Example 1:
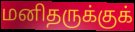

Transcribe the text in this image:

மனிதருக்குக்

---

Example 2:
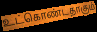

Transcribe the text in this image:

உட்கொண்டதாகும்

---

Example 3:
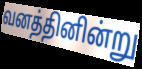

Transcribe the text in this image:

வனத்தினின்று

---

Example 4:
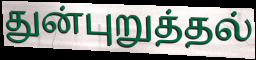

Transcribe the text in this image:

துன்புறுத்தல்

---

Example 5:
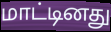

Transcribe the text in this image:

மாட்டினது